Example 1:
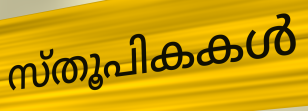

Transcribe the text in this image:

സ്തൂപികകൾ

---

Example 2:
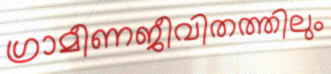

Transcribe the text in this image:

ഗ്രാമീണജീവിതത്തിലും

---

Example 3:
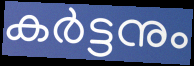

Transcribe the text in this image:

കർട്ടനും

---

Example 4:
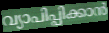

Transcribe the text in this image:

വ്യാപിപ്പിക്കാൻ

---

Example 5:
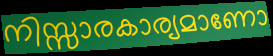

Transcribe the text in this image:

നിസ്സാരകാര്യമാണോ